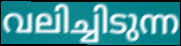
വലിച്ചിടുന്ന